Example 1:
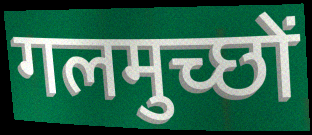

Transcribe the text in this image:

गलमुच्छों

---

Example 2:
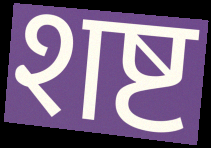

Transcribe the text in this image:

शष्ट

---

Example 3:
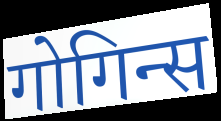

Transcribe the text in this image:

गोगिन्स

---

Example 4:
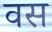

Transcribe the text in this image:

वस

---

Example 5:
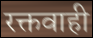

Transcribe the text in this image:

रक्तवाही